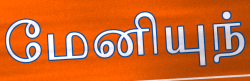
மேனியுந்